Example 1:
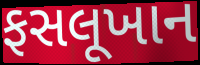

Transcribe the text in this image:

ફસલૂખાન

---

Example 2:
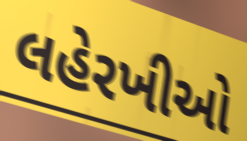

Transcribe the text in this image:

લહેરખીઓ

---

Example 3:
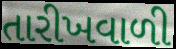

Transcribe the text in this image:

તારીખવાળી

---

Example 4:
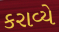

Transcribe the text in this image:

કરાવ્યે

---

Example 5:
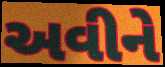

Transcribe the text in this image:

અવીને